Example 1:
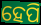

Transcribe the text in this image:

ହେପି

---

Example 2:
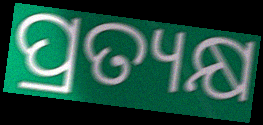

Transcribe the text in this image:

ପ୍ରତ୍ୟକ୍ଷ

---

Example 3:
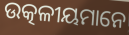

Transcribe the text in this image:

ଉତ୍କଳୀୟମାନେ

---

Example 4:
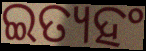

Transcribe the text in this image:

ଇତ୍ୟହଂ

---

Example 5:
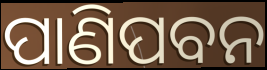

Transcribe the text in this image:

ପାଣିପବନ